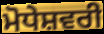
ਮੋਧੇਸ਼ਵਰੀ